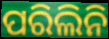
ପରିଲିନି